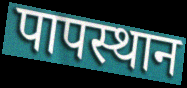
पापस्थान